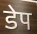
डेप